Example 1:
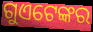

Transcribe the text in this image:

ଗୁଏଟେଙ୍କର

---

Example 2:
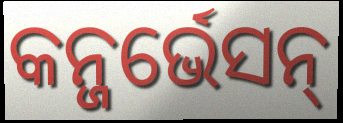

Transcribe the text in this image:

କନ୍ଜର୍ଭେସନ୍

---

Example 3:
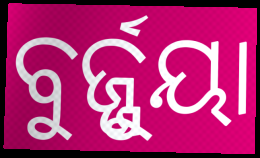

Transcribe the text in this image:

ବୁର୍ଜ୍ଜୁୟା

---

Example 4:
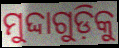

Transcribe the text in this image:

ମୁଦ୍ଦାଗୁଡ଼ିକୁ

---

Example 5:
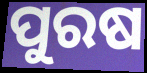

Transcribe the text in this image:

ପୁରଷ